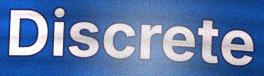
Discrete